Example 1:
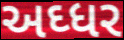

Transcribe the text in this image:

અઘ્ધર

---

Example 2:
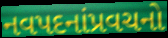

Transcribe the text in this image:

નવપદનાંપ્રવચનો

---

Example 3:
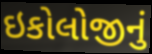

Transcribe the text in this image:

ઇકોલોજીનું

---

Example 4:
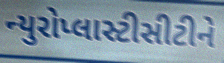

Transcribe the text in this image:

ન્યુરોપ્લાસ્ટીસીટીને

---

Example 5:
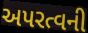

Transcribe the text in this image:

અપરત્વની